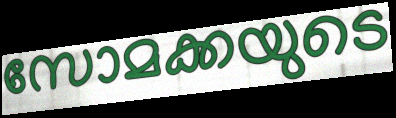
സോമക്കയുടെ